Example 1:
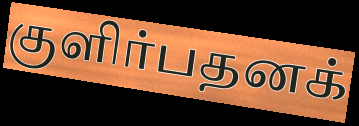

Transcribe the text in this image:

குளிர்பதனக்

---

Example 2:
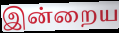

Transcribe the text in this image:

இன்றைய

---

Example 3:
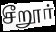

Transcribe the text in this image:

சீறூர்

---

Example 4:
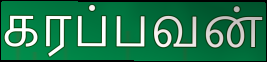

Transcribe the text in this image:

கரப்பவன்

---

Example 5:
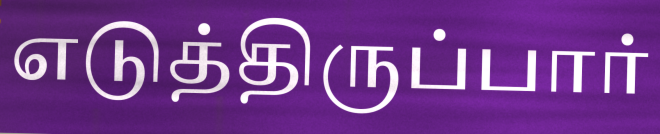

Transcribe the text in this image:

எடுத்திருப்பார்